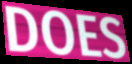
DOES